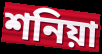
শনিয়া